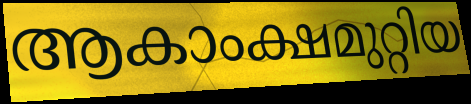
ആകാംക്ഷമുറ്റിയ